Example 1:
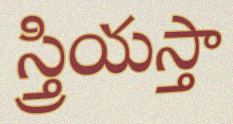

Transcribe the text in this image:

స్త్రియస్తా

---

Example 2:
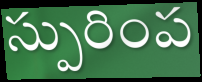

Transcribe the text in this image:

స్పురింప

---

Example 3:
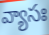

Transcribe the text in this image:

వ్యాసః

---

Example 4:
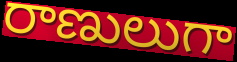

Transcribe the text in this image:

రాణులుగా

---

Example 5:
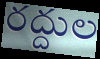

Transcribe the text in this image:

రద్దుల